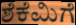
ಶೆಕೆಮಿಗೆ